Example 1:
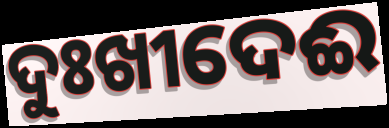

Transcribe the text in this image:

ଦୁଃଖୀଦେଈ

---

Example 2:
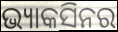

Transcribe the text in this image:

ଭ୍ୟାକସିନର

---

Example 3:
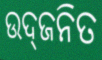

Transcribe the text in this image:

ଉଦ୍‌ଜନିତ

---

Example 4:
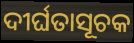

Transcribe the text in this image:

ଦୀର୍ଘତାସୂଚକ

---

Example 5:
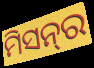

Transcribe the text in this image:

ମିସନ୍‌ର